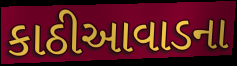
કાઠીઆવાડના